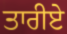
ਤਾਰੀਏ